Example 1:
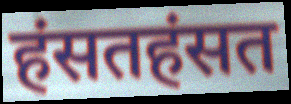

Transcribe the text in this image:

हंसतहंसत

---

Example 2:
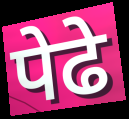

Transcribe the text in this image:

पेढे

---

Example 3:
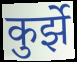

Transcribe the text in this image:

कुर्झे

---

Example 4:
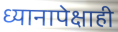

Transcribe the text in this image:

ध्यानापेक्षाही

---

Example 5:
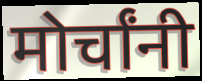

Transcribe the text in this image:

मोर्चांनी